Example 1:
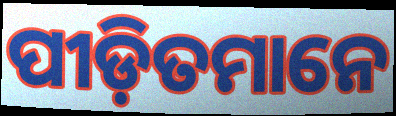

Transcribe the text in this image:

ପୀଡ଼ିତମାନେ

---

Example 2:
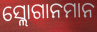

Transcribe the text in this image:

ସ୍ଲୋଗାନମାନ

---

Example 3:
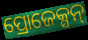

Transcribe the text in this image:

ପ୍ରୋଜେକ୍ସନ୍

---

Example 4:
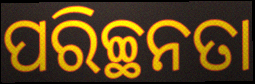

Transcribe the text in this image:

ପରିଚ୍ଛନତା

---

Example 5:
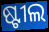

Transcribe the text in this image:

ଷ୍ଟୀଲ